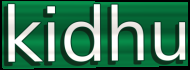
kidhu